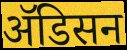
ॲडिसन